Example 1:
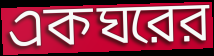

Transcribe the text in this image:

একঘরের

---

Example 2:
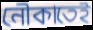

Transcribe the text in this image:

নৌকাতেই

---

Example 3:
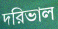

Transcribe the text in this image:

দরিভাল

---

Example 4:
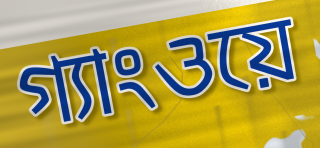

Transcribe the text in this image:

গ্যাংওয়ে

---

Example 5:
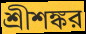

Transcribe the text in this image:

শ্রীশঙ্কর